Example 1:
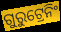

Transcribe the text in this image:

ଗୁରୁଟ୍ରେନିଂ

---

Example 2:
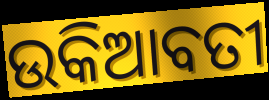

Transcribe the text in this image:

ଉକିଆବତୀ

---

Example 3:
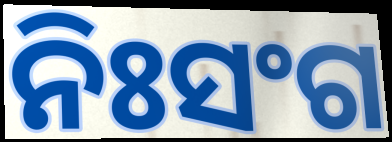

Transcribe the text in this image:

ନିଃସଂଗ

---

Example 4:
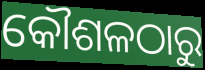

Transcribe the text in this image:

କୌଶଳଠାରୁ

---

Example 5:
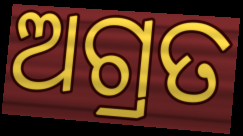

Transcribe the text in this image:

ଅଗ୍ରତ